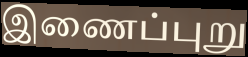
இணைப்புறு